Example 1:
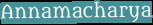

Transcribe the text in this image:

Annamacharya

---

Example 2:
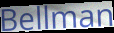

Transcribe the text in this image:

Bellman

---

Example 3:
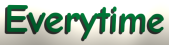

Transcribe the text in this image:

Everytime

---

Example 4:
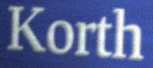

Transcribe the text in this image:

Korth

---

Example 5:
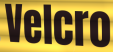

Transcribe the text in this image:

Velcro